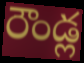
రౌండ్ల